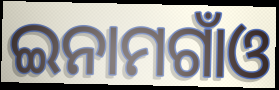
ଇନାମଗାଁଓ